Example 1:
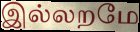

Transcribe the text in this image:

இல்லறமே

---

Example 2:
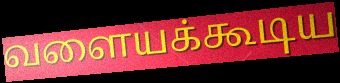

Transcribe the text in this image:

வளையக்கூடிய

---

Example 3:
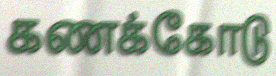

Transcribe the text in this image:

கணக்கோடு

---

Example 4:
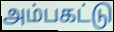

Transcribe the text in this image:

அம்பகட்டு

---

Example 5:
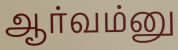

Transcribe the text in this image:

ஆர்வம்னு